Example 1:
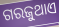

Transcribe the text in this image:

ଗରଜୁଥାଏ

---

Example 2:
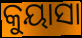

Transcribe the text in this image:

କୁୟାସା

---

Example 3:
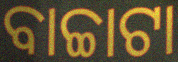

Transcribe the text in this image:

ବାଚ୍ଚାଟା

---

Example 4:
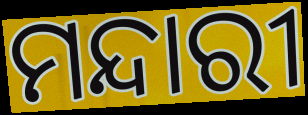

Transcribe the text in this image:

ମନ୍ଦାରୀ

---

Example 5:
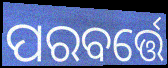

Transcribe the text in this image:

ପରବର୍ତ୍ତେ